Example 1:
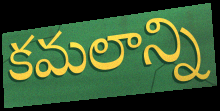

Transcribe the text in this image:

కమలాన్ని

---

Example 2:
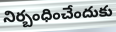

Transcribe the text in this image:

నిర్బంధించేందుకు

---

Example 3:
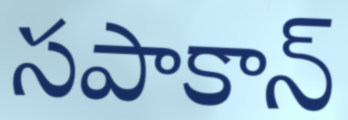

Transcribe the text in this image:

సపాకాన్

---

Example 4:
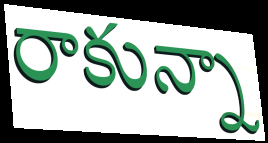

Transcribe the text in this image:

రాకున్నా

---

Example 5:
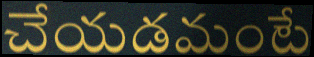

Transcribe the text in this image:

చేయడమంటే